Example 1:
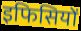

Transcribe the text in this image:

इफिसियों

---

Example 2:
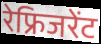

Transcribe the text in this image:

रेफ्रिजरेंट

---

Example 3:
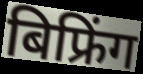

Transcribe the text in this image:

बिफ्रिंग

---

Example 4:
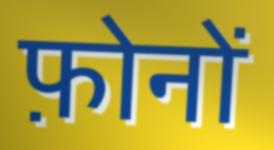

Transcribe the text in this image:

फ़ोनों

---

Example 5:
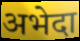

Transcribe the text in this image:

अभेदा